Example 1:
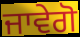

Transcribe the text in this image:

ਜਾਵੇਗੋ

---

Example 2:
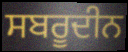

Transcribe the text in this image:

ਸਬਰੂਦੀਨ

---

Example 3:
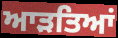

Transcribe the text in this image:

ਆੜਤਿਆਂ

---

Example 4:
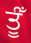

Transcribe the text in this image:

ਤੂੰਁ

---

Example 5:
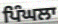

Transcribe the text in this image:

ਪਿੰਘਲਾ